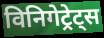
विनिगेट्रेट्स